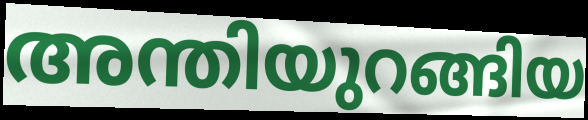
അന്തിയുറങ്ങിയ